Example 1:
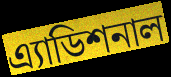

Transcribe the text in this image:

এ্যাডিশনাল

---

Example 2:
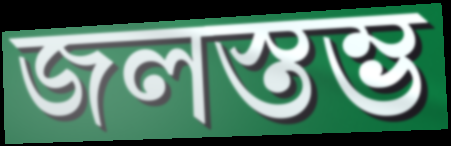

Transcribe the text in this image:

জলস্তম্ভ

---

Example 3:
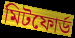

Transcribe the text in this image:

মিটফোর্ড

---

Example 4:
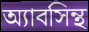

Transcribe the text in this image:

অ্যাবসিন্থ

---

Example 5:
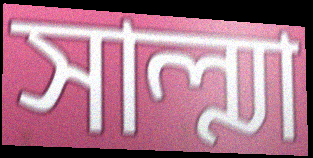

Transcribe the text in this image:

সাল্মা